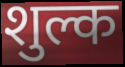
शुल्क